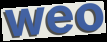
weo